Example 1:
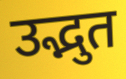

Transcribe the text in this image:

उद्भुत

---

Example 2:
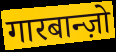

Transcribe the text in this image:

गारबान्ज़ो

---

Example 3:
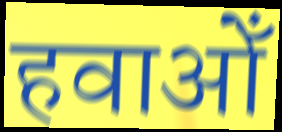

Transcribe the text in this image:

हवाओँ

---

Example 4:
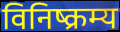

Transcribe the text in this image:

विनिष्क्रम्य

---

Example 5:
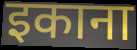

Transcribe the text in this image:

इकाना